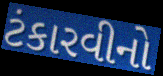
ટંકારવીનો